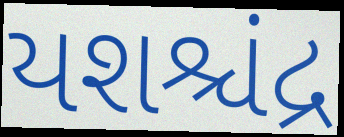
યશશ્ચંદ્ર